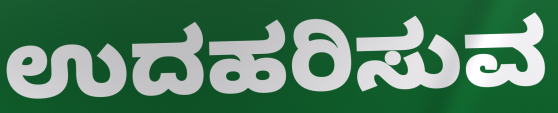
ಉದಹರಿಸುವ